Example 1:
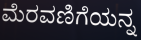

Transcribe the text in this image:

ಮೆರವಣಿಗೆಯನ್ನ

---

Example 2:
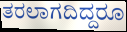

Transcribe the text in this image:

ತರಲಾಗದಿದ್ದರೂ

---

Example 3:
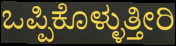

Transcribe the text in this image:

ಒಪ್ಪಿಕೊಳ್ಳುತ್ತೀರಿ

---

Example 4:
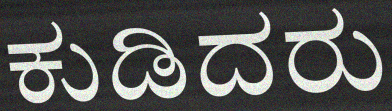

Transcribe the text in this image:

ಕುಡಿದರು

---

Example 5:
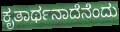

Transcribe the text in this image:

ಕೃತಾರ್ಥನಾದೆನೆಂದು